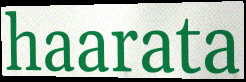
haarata